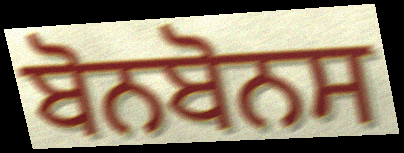
ਬੋਨਬੋਨਸ